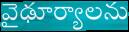
వైఢూర్యాలను